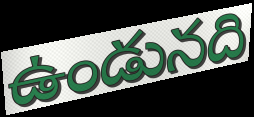
ఉండునది